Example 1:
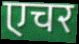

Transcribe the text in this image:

एचर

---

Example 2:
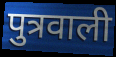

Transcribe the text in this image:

पुत्रवाली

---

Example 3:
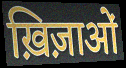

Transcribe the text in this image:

ख़िज़ाओं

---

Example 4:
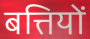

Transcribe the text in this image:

बत्तियों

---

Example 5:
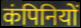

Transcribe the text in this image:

कंपिनियों